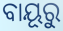
ବାୟୂରୁ